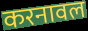
करनावल